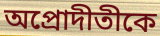
অপ্রোদীতীকে